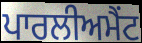
ਪਾਰਲੀਅਮੈਂਟ